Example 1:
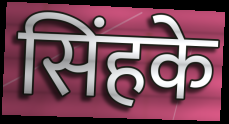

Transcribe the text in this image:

सिंहके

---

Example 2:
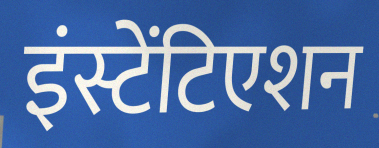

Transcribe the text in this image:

इंस्टेंटिएशन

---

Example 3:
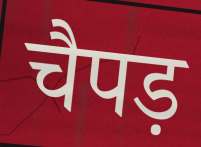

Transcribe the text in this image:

चैपड़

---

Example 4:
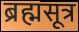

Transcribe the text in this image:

ब्रह्मसूत्र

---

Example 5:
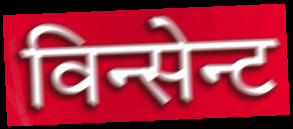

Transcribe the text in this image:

विन्सेन्ट